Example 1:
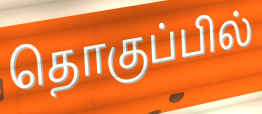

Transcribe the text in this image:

தொகுப்பில்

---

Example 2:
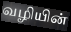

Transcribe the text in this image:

வழியின்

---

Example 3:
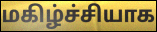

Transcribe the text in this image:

மகிழ்ச்சியாக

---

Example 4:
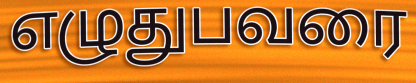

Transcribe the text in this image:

எழுதுபவரை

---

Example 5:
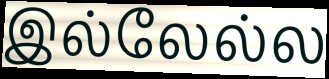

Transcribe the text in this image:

இல்லேல்ல